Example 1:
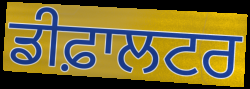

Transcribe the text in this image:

ਡੀਫ਼ਾਲਟਰ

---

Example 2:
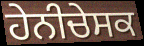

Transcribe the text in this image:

ਹੇਨੀਚੇਸਕ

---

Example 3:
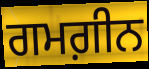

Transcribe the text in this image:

ਗਮਗ਼ੀਨ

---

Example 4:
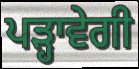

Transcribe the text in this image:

ਪੜ੍ਹਾਵੇਗੀ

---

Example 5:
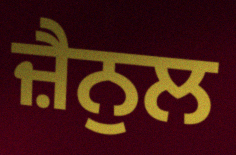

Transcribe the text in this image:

ਜ਼ੈਨੁਲ